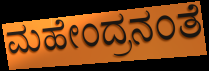
ಮಹೇಂದ್ರನಂತೆ